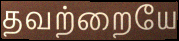
தவற்றையே